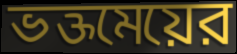
ভক্তমেয়ের